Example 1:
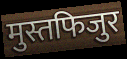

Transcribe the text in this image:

मुस्तफिजुर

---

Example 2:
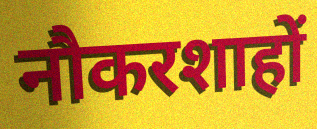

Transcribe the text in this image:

नौकरशाहों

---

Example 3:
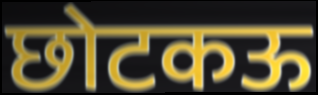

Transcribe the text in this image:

छोटकऊ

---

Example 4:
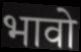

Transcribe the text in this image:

भावो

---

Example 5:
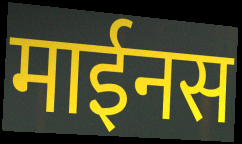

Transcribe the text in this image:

माईनस